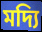
মদ্যি